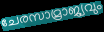
ചേരസാമ്രാജ്യവും